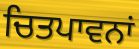
ਚਿਤਪਾਵਨਾਂ